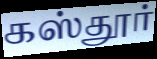
கஸ்தூர்